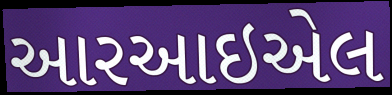
આરઆઇએલ